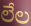
లేల